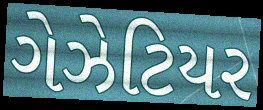
ગેઝેટિયર